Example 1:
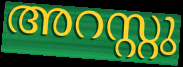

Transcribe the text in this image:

അറസ്റ്റു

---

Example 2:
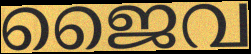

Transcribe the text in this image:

ജൈവ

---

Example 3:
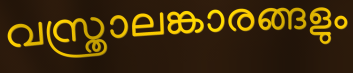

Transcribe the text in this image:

വസ്ത്രാലങ്കാരങ്ങളും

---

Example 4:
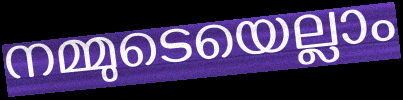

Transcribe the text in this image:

നമ്മുടെയെല്ലാം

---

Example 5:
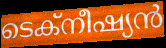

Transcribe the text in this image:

ടെക്നീഷ്യൻ